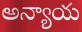
అన్యాయ